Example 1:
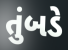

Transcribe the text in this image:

તુંબડે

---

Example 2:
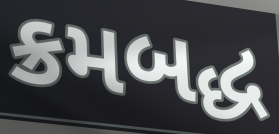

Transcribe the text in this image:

ક્રમબદ્ધ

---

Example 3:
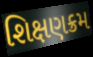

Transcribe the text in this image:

શિક્ષણક્રમ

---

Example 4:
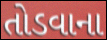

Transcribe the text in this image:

તોડવાના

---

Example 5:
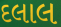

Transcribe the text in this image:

દલાલ